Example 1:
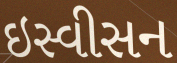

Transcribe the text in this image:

ઇસ્વીસન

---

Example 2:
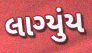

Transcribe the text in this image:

લાગ્યુંય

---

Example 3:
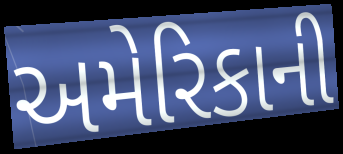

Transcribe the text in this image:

અમેરિકાની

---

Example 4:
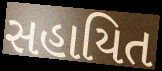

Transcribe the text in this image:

સહાયિત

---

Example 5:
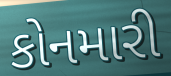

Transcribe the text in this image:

કોનમારી